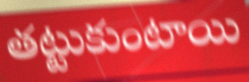
తట్టుకుంటాయి